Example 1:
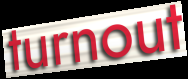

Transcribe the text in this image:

turnout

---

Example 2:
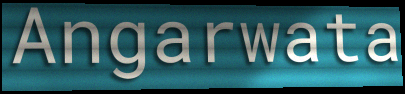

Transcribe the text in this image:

Angarwata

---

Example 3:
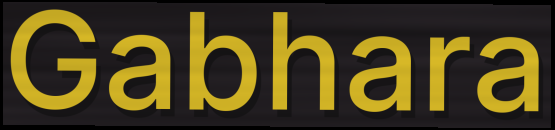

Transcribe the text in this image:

Gabhara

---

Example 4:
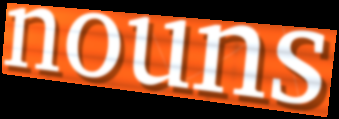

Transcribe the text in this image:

nouns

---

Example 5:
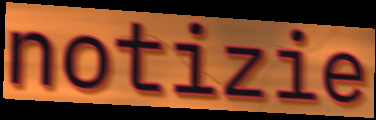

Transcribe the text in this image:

notizie